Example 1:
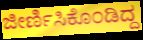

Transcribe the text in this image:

ಜೀರ್ಣಿಸಿಕೊಂಡಿದ್ದ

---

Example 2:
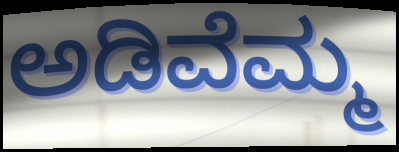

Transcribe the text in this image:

ಅಡಿವೆಮ್ಮ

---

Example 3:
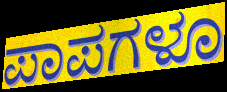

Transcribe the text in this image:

ಪಾಪಗಳೂ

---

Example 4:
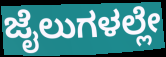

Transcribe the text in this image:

ಜೈಲುಗಳಲ್ಲೇ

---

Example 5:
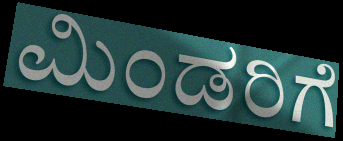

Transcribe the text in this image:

ಮಿಂಡರಿಗೆ